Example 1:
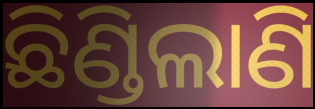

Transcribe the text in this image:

ଛିଣ୍ଡିଲାଣି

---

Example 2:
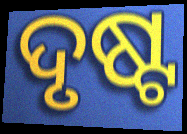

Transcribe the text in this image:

ଦୃଷ୍ଟ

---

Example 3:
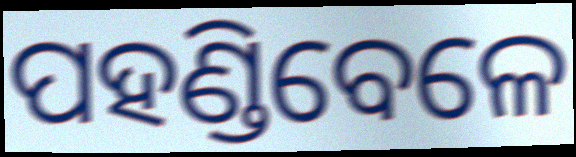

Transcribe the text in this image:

ପହଣ୍ଡିବେଳେ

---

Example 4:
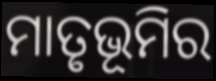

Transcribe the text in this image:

ମାତୃଭୂମିର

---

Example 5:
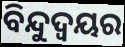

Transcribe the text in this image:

ବିନ୍ଦୁଦ୍ବୟର